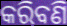
କରିବଣି